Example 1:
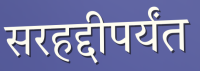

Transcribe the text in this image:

सरहद्दीपर्यंत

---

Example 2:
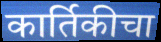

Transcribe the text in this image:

कार्तिकीचा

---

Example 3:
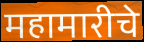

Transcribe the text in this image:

महामारीचे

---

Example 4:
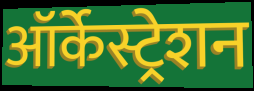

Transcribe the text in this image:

ऑर्केस्ट्रेशन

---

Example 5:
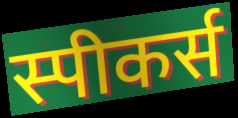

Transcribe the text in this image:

स्पीकर्स